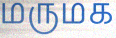
மருமக